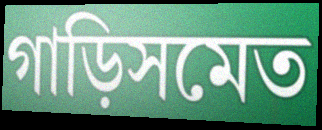
গাড়িসমেত